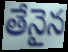
తేనైన